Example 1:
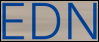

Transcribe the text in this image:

EDN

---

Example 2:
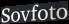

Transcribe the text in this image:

Sovfoto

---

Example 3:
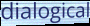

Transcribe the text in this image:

dialogical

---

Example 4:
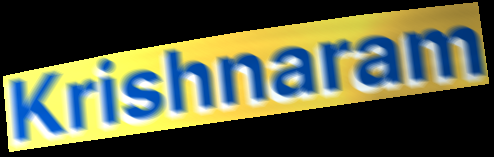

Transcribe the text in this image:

Krishnaram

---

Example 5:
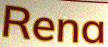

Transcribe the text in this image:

Rena